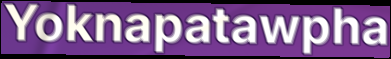
Yoknapatawpha